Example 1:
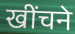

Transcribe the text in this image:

खींचने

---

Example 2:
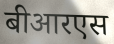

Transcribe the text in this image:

बीआरएस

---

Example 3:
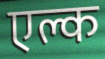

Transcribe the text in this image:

एल्क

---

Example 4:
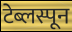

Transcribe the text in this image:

टेब्लस्पून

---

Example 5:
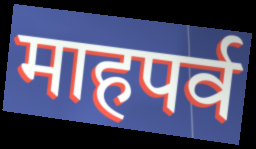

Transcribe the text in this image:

माहपर्व